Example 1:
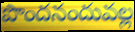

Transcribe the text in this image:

పొందనందువల్ల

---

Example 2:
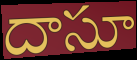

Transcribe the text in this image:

దాసూ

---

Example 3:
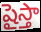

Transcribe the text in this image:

షైస్తా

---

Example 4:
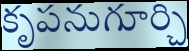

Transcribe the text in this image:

కృపనుగూర్చి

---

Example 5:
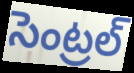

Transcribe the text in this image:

సెంట్రల్